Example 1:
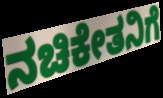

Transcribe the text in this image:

ನಚಿಕೇತನಿಗೆ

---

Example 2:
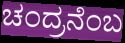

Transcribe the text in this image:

ಚಂದ್ರನೆಂಬ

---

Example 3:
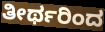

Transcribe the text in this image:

ತೀರ್ಥರಿಂದ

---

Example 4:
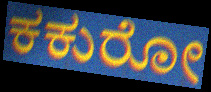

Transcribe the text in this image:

ಕಕುರೋ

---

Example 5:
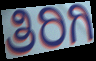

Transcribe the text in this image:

ತಿರಿಗಿ